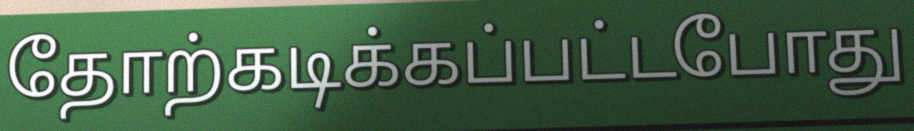
தோற்கடிக்கப்பட்டபோது